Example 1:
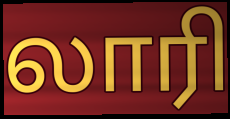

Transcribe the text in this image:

லாரி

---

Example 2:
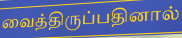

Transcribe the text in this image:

வைத்திருப்பதினால்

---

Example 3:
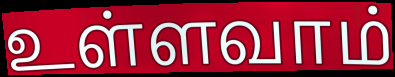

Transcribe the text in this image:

உள்ளவாம்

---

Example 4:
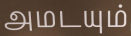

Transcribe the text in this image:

அமடயும்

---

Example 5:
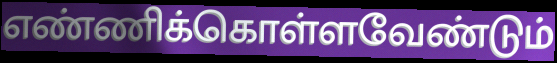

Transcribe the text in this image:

எண்ணிக்கொள்ளவேண்டும்